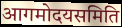
आगमोदयसमिति